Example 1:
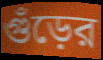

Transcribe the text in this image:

গুঁড়ের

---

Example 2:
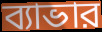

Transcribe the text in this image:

ব্যাভার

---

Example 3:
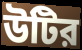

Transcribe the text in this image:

উটির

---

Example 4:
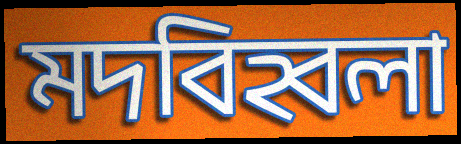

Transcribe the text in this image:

মদবিহ্বলা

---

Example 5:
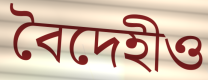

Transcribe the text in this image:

বৈদেহীও